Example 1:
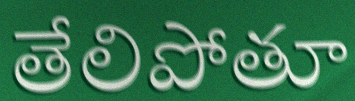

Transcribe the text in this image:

తేలిపోతూ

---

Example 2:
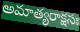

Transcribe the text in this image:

అమాత్యరాక్షసః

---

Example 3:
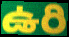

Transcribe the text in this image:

ఉరి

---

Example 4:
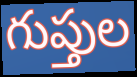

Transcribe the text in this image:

గుప్తుల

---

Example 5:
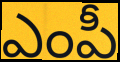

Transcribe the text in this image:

ఎంపీ